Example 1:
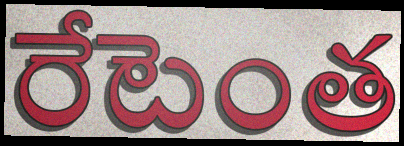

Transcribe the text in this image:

రేటెంత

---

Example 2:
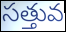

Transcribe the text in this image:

సత్తువ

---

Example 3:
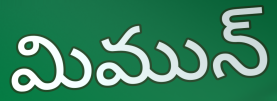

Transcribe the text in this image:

మిమున్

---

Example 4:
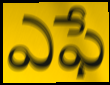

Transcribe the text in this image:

ఎఫే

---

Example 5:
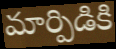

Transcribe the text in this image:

మార్పిడికి